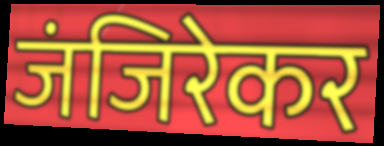
जंजिरेकर